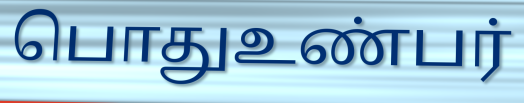
பொதுஉண்பர்